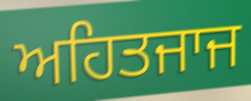
ਅਹਿਤਜਾਜ